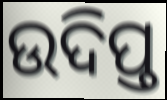
ଉଦିପ୍ତ